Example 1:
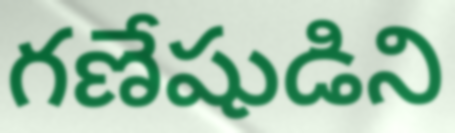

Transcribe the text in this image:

గణేషుడిని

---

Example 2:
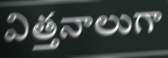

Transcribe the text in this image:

విత్తనాలుగా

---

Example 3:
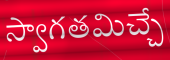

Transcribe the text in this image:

స్వాగతమిచ్చే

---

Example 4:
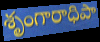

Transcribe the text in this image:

శృంగారాధిపా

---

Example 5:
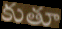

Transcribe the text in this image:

కుతూ